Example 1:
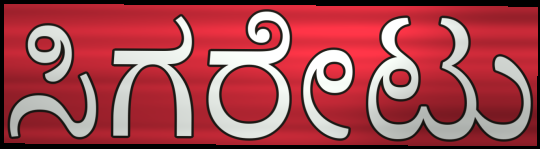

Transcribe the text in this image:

ಸಿಗರೇಟು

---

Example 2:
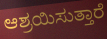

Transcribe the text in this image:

ಆಶ್ರಯಿಸುತ್ತಾರೆ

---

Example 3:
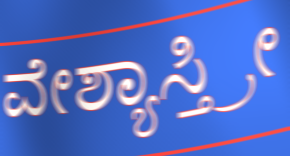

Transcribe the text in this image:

ವೇಶ್ಯಾಸ್ತ್ರೀ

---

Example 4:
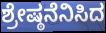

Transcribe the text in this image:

ಶ್ರೇಷ್ಠನೆನಿಸಿದ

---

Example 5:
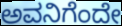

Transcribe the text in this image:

ಅವನಿಗೆಂದೇ